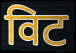
विट